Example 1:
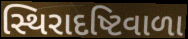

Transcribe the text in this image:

સ્થિરાદષ્ટિવાળા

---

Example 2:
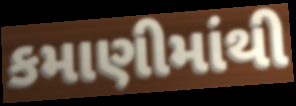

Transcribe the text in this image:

કમાણીમાંથી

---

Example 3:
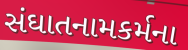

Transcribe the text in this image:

સંઘાતનામકર્મના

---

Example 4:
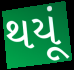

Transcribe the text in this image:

થયૂં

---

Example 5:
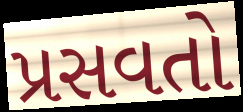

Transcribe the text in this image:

પ્રસવતો